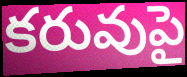
కరువుపై